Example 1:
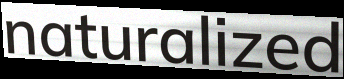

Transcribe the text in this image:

naturalized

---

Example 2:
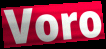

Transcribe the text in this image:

Voro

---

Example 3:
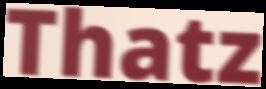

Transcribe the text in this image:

Thatz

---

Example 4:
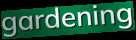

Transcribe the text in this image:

gardening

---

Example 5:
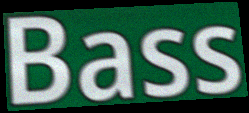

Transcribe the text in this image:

Bass